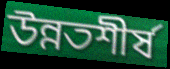
উন্নতশীর্ষ